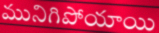
మునిగిపోయాయి